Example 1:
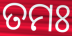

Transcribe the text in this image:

ତମଃ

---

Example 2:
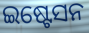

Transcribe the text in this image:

ଇଷ୍ଟେସନ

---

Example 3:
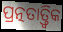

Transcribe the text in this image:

ପ୍ରତ୍ନତାତ୍ତ୍ଵିକ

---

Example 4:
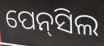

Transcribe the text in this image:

ପେନ୍‌ସିଲ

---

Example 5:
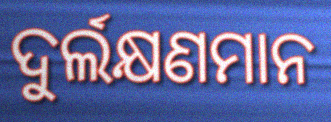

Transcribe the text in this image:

ଦୁର୍ଲକ୍ଷଣମାନ